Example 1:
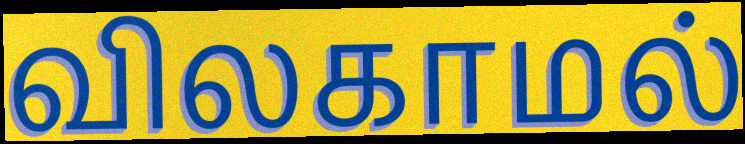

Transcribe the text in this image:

விலகாமல்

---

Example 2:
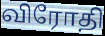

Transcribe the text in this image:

விரோதி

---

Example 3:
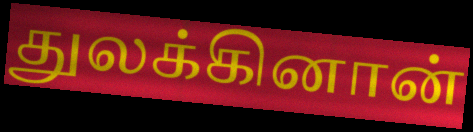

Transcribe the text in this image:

துலக்கினான்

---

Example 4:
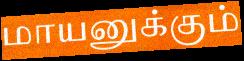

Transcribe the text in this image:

மாயனுக்கும்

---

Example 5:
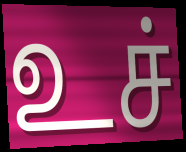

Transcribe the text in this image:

உச்